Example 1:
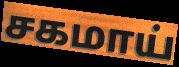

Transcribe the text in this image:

சகமாய்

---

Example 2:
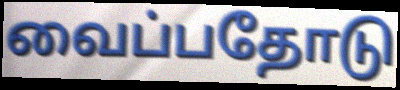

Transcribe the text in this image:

வைப்பதோடு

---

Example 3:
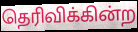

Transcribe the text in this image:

தெரிவிக்கின்ற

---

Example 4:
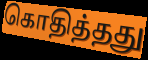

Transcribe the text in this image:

கொதித்தது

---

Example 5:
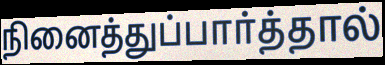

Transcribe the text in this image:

நினைத்துப்பார்த்தால்